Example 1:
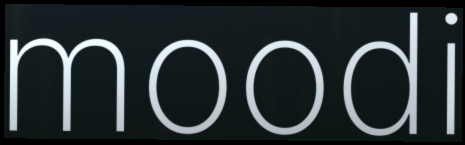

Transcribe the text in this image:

moodi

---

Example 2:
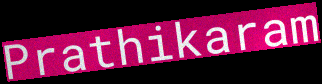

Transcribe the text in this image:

Prathikaram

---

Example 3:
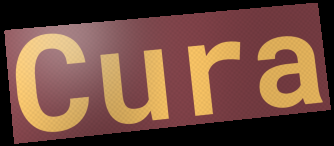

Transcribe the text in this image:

Cura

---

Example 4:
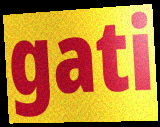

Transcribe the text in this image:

gati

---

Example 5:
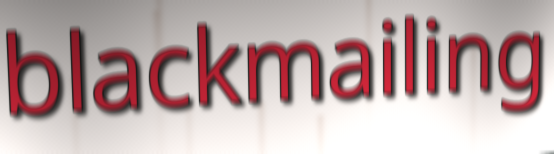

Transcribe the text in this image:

blackmailing